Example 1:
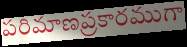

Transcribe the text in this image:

పరిమాణప్రకారముగా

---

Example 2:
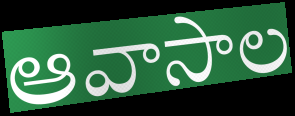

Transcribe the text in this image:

ఆవాసాల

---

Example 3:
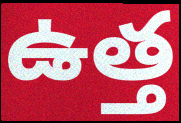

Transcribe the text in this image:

ఉత్త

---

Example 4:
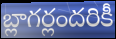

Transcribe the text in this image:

బ్లాగర్లందరికీ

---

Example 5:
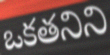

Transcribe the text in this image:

ఒకతనిని